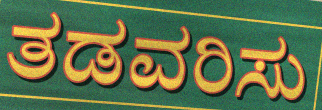
ತಡವರಿಸು